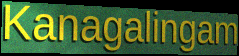
Kanagalingam